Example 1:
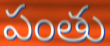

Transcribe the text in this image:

పంతు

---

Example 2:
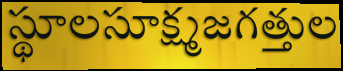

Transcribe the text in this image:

స్థూలసూక్ష్మజగత్తుల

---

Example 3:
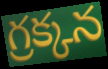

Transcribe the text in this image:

గ్రక్కన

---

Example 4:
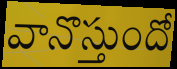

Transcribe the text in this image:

వానొస్తుందో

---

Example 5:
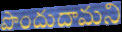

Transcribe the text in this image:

పొందుదామని